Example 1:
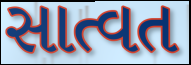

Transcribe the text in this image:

સાત્વત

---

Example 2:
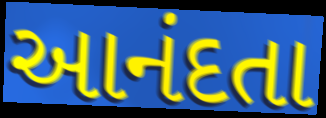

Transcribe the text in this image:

આનંદતા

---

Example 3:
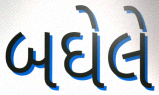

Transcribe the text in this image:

બઘેલે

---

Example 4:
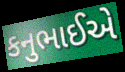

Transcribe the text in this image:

કનુભાઈએ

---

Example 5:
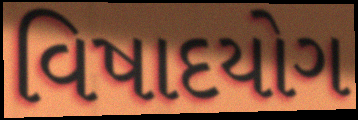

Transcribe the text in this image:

વિષાદયોગ